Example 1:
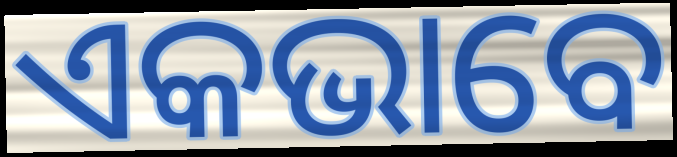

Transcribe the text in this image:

ଏକଭାବେ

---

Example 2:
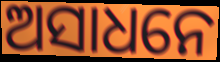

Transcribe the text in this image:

ଅସାଧନେ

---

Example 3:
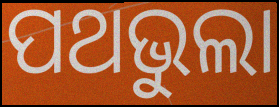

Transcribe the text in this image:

ପଥଭୁଲା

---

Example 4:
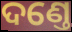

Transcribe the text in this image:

ଦଣ୍ତେ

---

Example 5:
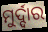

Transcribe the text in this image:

ମୁର୍ଦ୍ଦାର